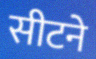
सीटने